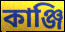
কাঞ্জি